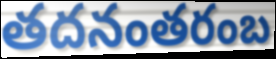
తదనంతరంబ